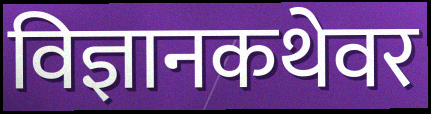
विज्ञानकथेवर